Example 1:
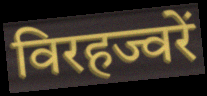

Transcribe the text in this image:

विरहज्वरें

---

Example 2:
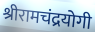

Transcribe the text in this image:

श्रीरामचंद्रयोगी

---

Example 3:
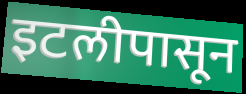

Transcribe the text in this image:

इटलीपासून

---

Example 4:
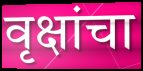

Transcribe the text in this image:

वृक्षांचा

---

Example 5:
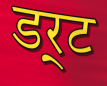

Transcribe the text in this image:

डर्ट